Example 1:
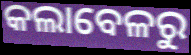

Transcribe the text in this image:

କଲାବେଳରୁ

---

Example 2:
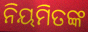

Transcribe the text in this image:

ନିୟମିତଙ୍କ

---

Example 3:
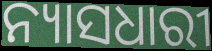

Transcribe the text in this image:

ନ୍ୟାସଧାରୀ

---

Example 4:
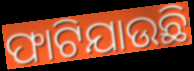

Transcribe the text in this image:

ଫାଟିଯାଉଛି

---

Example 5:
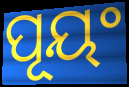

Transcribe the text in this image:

ପୂୟଂ